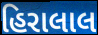
હિરાલાલ